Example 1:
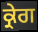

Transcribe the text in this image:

ਕ੍ਰੇਗ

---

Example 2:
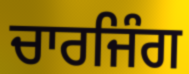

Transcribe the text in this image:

ਚਾਰਜਿੰਗ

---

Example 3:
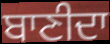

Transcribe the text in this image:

ਬਾਣੀਦਾ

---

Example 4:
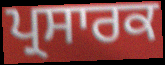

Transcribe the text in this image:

ਪ੍ਰਸਾਰਕ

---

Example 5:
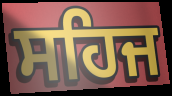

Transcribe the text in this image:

ਸਹਿਜ